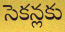
సెకన్లకు